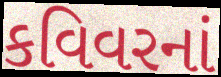
કવિવરનાં